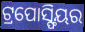
ଟ୍ରପୋସ୍ଫିୟର